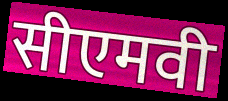
सीएमवी